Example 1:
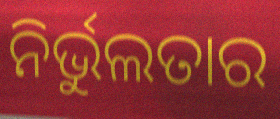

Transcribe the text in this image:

ନିର୍ଭୁଲତାର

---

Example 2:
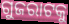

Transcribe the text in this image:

ଗୁଜରାଟକୁ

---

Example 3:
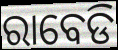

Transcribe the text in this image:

ରାବେଡି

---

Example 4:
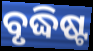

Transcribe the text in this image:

ବୃଦ୍ଧିଷ୍ଟ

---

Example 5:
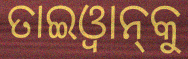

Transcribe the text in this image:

ତାଇଓ୍ବାନ୍‌କୁ